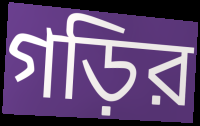
গড়ির